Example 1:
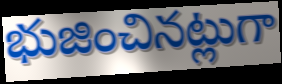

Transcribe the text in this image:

భుజించినట్లుగా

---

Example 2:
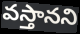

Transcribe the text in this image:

వస్తానని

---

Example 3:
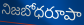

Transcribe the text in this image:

నిజబోధరూపా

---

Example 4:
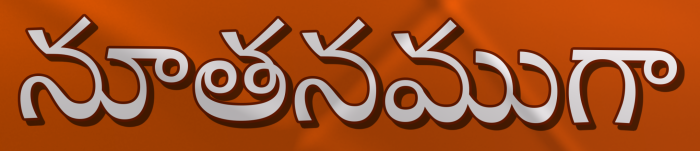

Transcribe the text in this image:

నూతనముగా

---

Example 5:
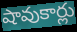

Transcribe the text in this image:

షావుకార్లు